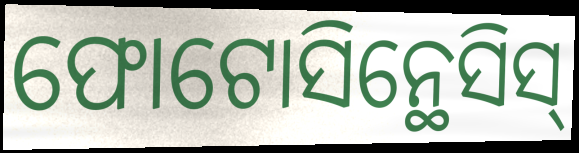
ଫୋଟୋସିନ୍ଥେସିସ୍